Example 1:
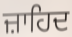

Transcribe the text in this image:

ਜ਼ਾਹਿਦ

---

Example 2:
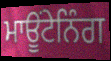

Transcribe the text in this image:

ਮਾਊਂਟੇਨਿੰਗ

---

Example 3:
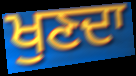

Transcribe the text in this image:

ਖੁਣਦਾ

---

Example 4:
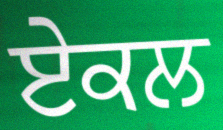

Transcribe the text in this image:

ਏਕਲ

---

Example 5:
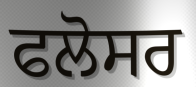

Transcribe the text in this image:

ਫਲੋਸਰ